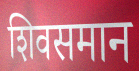
शिवसमान